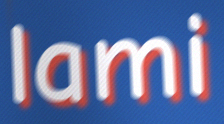
lami